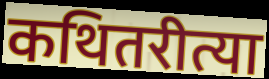
कथितरीत्या